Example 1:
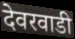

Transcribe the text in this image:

देवरवाडी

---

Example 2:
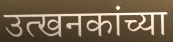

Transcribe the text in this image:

उत्खनकांच्या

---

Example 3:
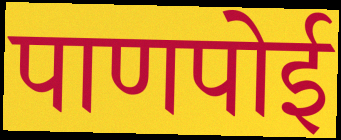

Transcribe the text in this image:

पाणपोई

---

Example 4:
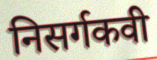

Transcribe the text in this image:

निसर्गकवी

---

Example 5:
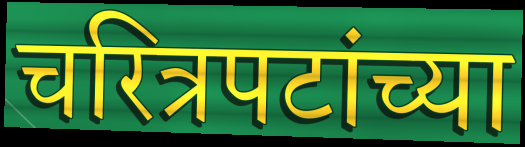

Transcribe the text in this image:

चरित्रपटांच्या